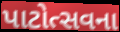
પાટોત્સવના